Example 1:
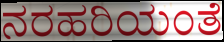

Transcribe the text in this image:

ನರಹರಿಯಂತೆ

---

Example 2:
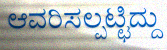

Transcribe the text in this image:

ಆವರಿಸಲ್ಪಟ್ಟಿದ್ದು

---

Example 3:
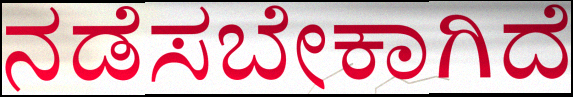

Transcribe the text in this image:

ನಡೆಸಬೇಕಾಗಿದೆ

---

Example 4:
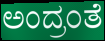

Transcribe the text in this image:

ಅಂದ್ರಂತೆ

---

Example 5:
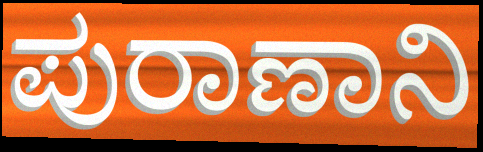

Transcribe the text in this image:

ಪುರಾಣಾನಿ